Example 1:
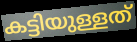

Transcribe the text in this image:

കട്ടിയുള്ളത്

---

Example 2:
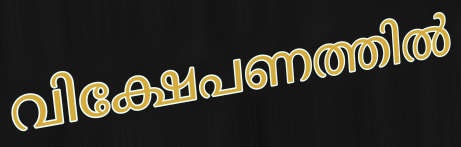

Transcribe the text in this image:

വിക്ഷേപണത്തിൽ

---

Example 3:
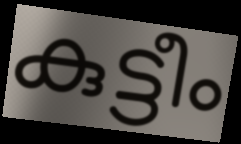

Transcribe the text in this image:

കുട്ടീം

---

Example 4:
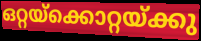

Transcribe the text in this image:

ഒറ്റയ്ക്കൊറ്റയ്ക്കു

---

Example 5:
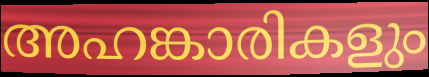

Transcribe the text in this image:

അഹങ്കാരികളും